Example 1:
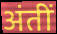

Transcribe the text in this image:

अंतीं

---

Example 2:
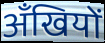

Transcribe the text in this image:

अँखियों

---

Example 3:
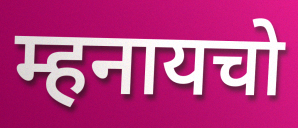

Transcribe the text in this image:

म्हनायचो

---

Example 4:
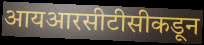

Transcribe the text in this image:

आयआरसीटीसीकडून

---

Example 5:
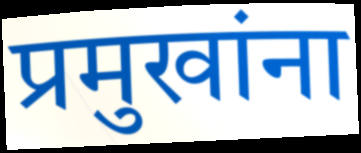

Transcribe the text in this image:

प्रमुखांना